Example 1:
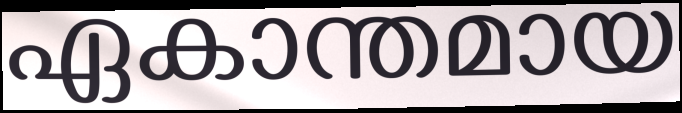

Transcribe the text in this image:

ഏകാന്തമായ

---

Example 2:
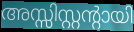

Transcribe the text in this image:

അസ്സിസ്റ്റന്റായി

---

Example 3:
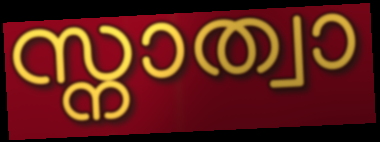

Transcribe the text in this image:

സ്നാത്വാ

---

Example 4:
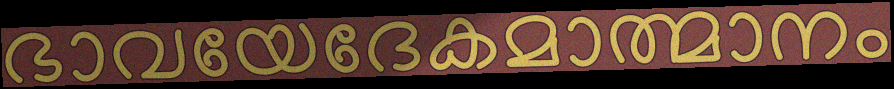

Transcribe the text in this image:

ഭാവയേദേകമാത്മാനം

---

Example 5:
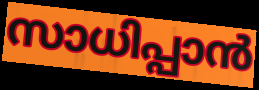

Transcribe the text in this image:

സാധിപ്പാൻ